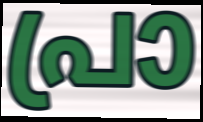
പ്രാ